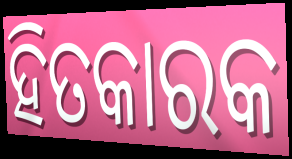
ହିତକାରକ